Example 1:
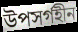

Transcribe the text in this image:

উপসর্গহীন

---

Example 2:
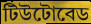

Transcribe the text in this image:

টিউটোবেড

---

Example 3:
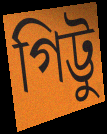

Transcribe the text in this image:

গিট্টু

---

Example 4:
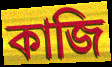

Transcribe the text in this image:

কাজি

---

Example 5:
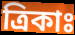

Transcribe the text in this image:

ত্রিকাঃ